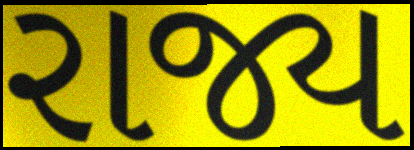
રાજ્ય